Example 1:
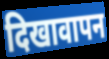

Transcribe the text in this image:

दिखावापन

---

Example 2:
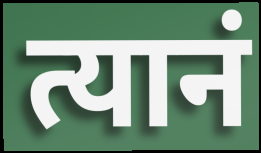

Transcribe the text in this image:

त्यानं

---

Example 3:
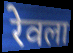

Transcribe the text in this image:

रेवला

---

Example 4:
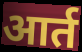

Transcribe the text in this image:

आर्त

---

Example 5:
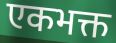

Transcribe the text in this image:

एकभक्त